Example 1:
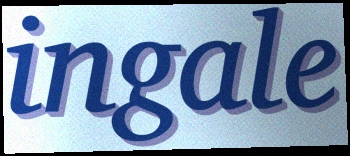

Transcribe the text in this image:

ingale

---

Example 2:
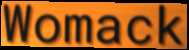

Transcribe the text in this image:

Womack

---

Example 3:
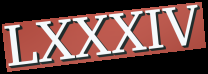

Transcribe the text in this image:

LXXXIV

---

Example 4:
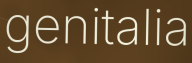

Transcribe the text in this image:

genitalia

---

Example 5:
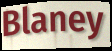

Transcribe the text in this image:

Blaney